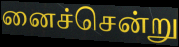
னைச்சென்று